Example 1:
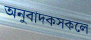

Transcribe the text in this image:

অনুবাদকসকলে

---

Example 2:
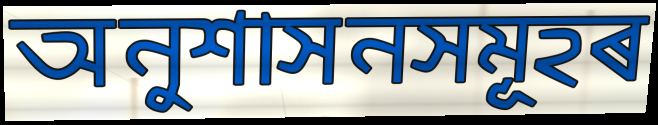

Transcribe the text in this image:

অনুশাসনসমূহৰ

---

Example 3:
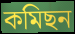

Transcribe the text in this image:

কমিছন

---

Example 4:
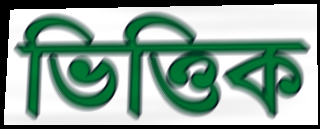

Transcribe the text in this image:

ভিত্তিক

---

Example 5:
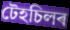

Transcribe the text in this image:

টেহচিলৰ